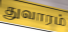
துவாரம்